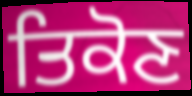
ਤਿਕੋਣ